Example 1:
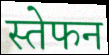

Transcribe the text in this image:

स्तेफन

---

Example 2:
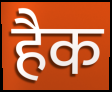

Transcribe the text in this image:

हैक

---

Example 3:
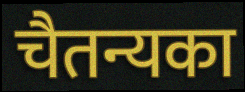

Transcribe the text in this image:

चैतन्यका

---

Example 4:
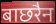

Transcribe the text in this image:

बाछरैन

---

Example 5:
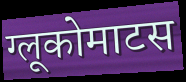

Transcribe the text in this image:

ग्लूकोमाटस